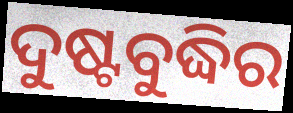
ଦୁଷ୍ଟବୁଦ୍ଧିର